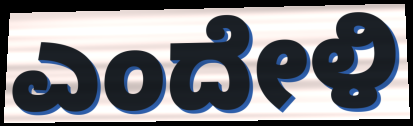
ಎಂದೇಳಿ